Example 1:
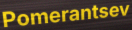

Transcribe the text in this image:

Pomerantsev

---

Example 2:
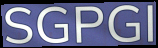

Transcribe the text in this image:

SGPGI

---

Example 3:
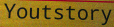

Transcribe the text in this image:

Youtstory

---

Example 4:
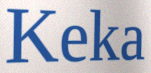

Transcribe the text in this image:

Keka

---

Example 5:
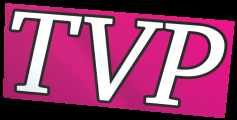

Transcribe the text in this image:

TVP